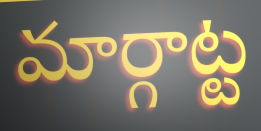
మార్గాట్ట